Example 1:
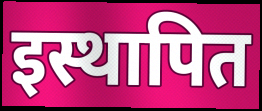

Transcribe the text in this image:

इस्थापित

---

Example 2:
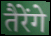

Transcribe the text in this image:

तैरेंगे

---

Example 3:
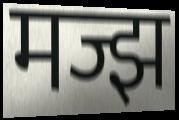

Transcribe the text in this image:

मज्झ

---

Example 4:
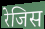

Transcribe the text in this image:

रेजिस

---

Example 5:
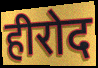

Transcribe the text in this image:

हीरोद